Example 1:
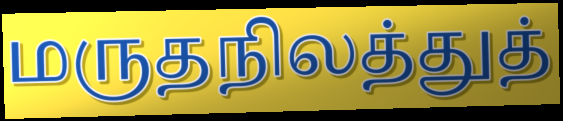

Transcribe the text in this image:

மருதநிலத்துத்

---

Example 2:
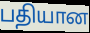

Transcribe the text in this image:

பதியான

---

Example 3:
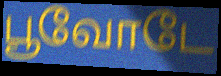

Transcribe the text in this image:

பூவோடே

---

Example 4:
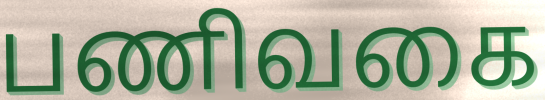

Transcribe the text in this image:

பணிவகை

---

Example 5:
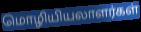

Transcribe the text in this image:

மொழியியலாளர்கள்